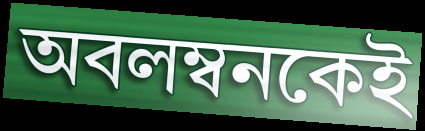
অবলম্বনকেই